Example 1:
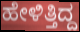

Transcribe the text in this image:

ಹೇಳಿತ್ತಿದ್ದ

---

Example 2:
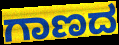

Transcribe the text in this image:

ಗಾಣದ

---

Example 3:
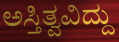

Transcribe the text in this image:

ಅಸ್ತಿತ್ವವಿದ್ದು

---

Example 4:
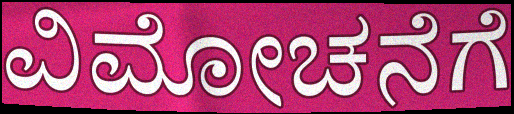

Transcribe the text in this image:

ವಿಮೋಚನೆಗೆ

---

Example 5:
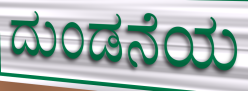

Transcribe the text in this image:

ದುಂಡನೆಯ